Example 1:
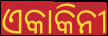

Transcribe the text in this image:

ଏକାକିନୀ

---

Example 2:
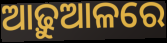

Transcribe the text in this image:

ଆଢ଼ୁଆଳରେ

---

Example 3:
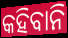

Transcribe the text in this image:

କହିବାନି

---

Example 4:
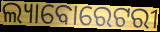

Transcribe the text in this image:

ଲ୍ୟାବୋରେଟରୀ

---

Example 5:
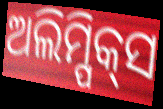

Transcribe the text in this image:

ଅଲିମ୍ପିକ୍‌ସ